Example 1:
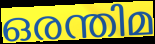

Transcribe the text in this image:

ഒരന്തിമ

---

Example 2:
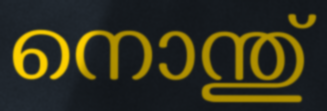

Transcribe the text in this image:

നൊന്തു്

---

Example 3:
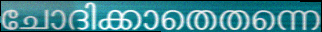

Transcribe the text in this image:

ചോദിക്കാതെതന്നെ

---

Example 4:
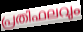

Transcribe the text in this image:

പ്രതിഫലവും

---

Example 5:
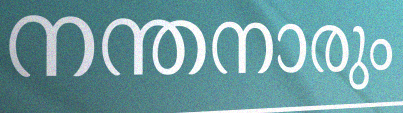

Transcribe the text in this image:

നന്തനാരും